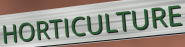
HORTICULTURE